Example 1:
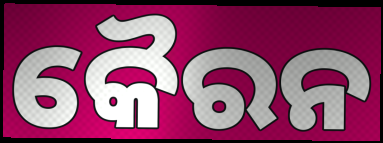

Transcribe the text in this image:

କୈରନ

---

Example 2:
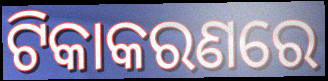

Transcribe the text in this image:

ଟିକାକରଣରେ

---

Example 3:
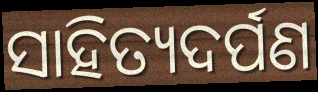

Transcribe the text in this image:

ସାହିତ୍ୟଦର୍ପଣ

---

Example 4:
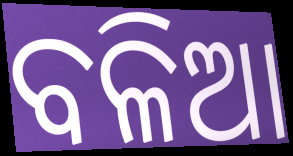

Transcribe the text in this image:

ବଳିଆ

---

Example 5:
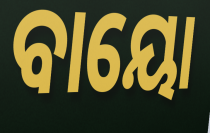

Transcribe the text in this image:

ବାୟୋ